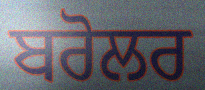
ਬਰੋਲਰ